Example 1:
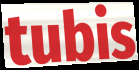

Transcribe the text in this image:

tubis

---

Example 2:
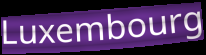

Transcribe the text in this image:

Luxembourg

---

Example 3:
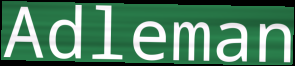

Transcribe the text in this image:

Adleman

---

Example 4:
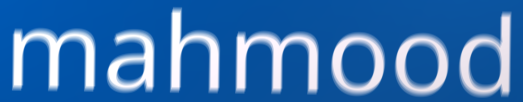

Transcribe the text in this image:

mahmood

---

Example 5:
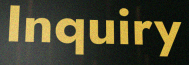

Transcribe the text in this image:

Inquiry